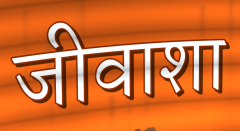
जीवाशा